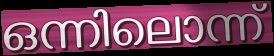
ഒന്നിലൊന്ന്